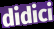
didici